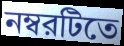
নম্বরটিতে